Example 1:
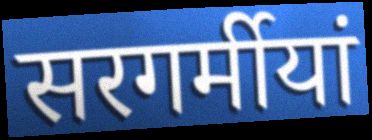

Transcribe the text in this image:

सरगर्मीयां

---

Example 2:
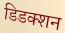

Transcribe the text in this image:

डिडक्शन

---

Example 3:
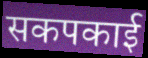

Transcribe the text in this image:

सकपकाई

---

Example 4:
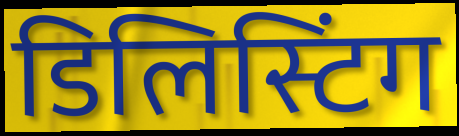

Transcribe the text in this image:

डिलिस्टिंग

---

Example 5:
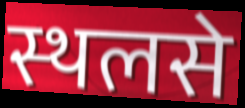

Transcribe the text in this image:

स्थलसे